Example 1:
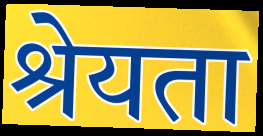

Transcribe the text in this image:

श्रेयता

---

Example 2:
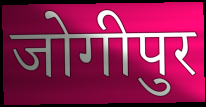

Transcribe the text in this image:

जोगीपुर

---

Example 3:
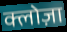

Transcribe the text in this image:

क्लोज़ा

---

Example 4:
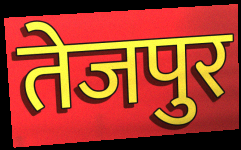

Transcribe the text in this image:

तेजपुर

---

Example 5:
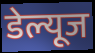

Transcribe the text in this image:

डेल्यूज